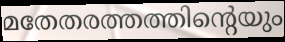
മതേതരത്തത്തിന്റെയും